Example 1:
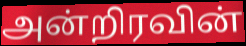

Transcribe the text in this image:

அன்றிரவின்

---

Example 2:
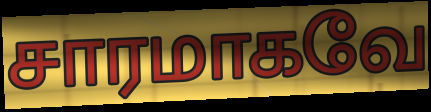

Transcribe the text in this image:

சாரமாகவே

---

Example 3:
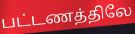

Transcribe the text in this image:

பட்டணத்திலே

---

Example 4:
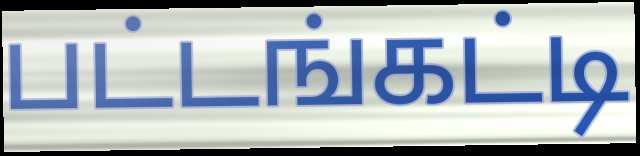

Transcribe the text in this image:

பட்டங்கட்டி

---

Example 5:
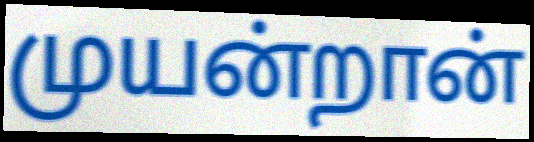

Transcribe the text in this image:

முயன்றான்